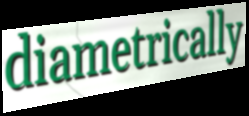
diametrically